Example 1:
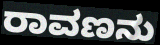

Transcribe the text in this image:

ರಾವಣನು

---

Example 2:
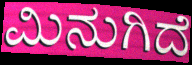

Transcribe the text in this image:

ಮಿನುಗಿದೆ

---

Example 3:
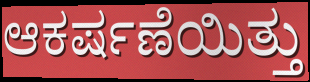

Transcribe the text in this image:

ಆಕರ್ಷಣೆಯಿತ್ತು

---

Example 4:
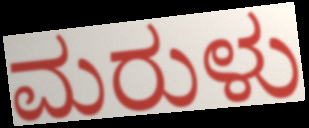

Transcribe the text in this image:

ಮರುಳು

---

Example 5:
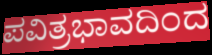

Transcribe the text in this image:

ಪವಿತ್ರಭಾವದಿಂದ